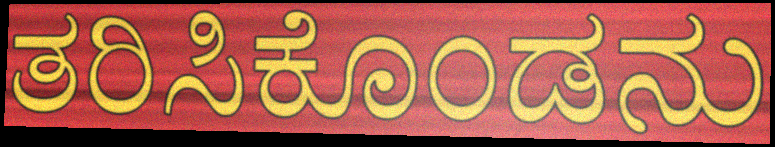
ತರಿಸಿಕೊಂಡನು